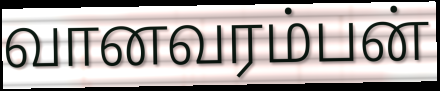
வானவரம்பன்